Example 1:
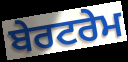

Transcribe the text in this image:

ਬੇਰਟਰੇਮ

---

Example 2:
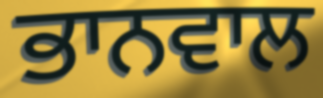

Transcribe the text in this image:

ਭਾਨਵਾਲ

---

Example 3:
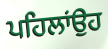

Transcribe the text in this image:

ਪਹਿਲਾਂਉਹ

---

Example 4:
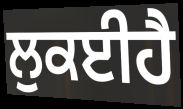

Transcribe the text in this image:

ਲੁਕਈਹੈ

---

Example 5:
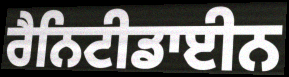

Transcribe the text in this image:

ਰੈਨਿਟੀਡਾਈਨ